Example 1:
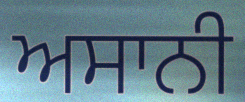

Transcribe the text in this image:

ਅਸਾਨੀ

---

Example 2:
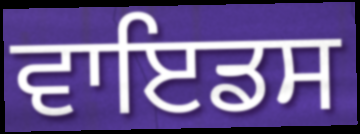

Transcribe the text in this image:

ਵਾਇਡਸ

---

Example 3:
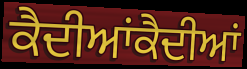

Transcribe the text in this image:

ਕੈਦੀਆਂਕੈਦੀਆਂ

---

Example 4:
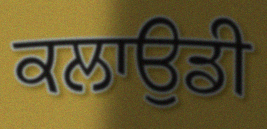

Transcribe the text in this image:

ਕਲਾਉਡੀ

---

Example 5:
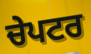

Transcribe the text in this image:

ਚੇਪਟਰ